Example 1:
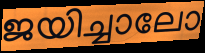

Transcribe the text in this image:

ജയിച്ചാലോ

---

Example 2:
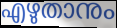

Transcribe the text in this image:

എഴുതാനും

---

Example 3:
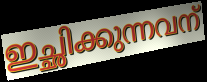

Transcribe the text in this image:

ഇച്ഛിക്കുന്നവന്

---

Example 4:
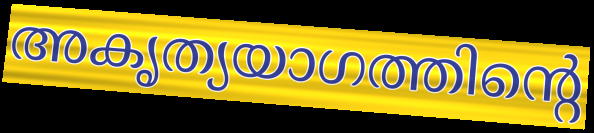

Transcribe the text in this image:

അകൃത്യയാഗത്തിന്റെ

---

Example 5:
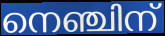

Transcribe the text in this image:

നെഞ്ചിന്